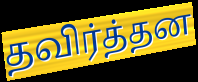
தவிர்த்தன